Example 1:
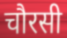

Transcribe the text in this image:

चौरसी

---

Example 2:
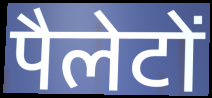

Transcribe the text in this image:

पैलेटों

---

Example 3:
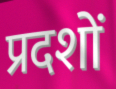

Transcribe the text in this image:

प्रदशों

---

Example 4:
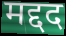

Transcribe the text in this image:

मद्दद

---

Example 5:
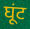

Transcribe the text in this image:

घूंट